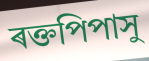
ৰক্তপিপাসু